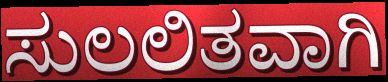
ಸುಲಲಿತವಾಗಿ